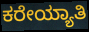
ಕರೇಯ್ಯಾತಿ